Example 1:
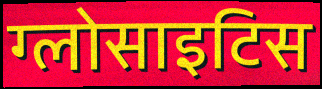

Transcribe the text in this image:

ग्लोसाइटिस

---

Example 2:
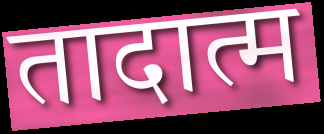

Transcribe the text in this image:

तादात्म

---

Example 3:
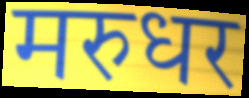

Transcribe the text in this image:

मरुधर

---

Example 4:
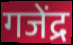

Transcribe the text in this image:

गजेंद्र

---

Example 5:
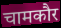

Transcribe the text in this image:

चामकौर